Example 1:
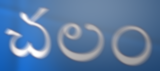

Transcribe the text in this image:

చలం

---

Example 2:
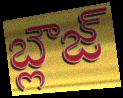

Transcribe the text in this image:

బ్లౌజ్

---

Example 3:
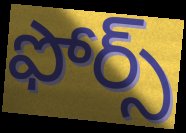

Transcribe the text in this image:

ఫోర్స్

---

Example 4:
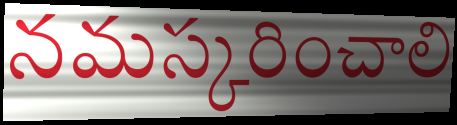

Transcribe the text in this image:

నమస్కరించాలి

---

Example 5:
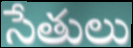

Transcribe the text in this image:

సేతులు